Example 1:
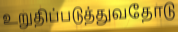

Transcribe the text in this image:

உறுதிப்படுத்துவதோடு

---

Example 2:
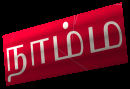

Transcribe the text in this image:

நாம்ம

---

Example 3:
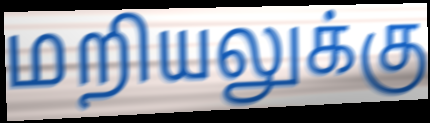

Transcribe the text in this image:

மறியலுக்கு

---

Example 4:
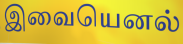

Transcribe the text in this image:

இவையெனல்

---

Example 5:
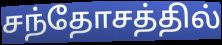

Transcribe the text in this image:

சந்தோசத்தில்